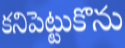
కనిపెట్టుకొను